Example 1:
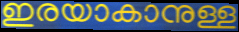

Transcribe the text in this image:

ഇരയാകാനുള്ള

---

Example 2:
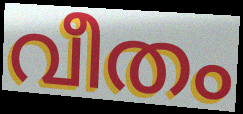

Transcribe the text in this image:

വീതം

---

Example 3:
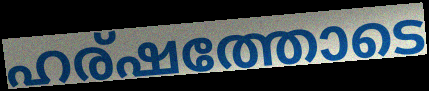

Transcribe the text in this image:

ഹര്ഷത്തോടെ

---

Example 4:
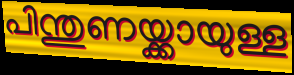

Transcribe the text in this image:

പിന്തുണയ്ക്കായുള്ള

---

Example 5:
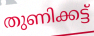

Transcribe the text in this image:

തുണിക്കട്ട്